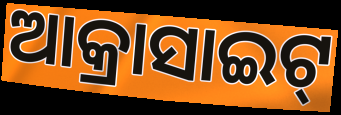
ଆକ୍ରାସାଇଟ୍